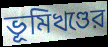
ভূমিখণ্ডের